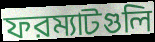
ফরম্যাটগুলি